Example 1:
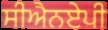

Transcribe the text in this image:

ਸੀਐਨਏਪੀ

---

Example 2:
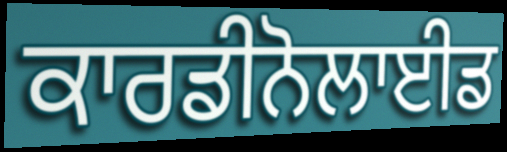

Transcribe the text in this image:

ਕਾਰਡੀਨੋਲਾਈਡ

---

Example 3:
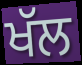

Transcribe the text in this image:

ਖੱਲ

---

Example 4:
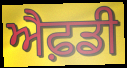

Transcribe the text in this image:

ਐਫ਼ਡੀ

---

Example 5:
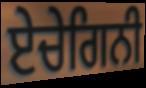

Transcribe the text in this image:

ਏਚੇਗਿਨੀ